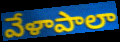
వేళాపాలా